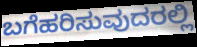
ಬಗೆಹರಿಸುವುದರಲ್ಲಿ